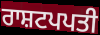
ਰਾਸ਼ਟਪਪਤੀ